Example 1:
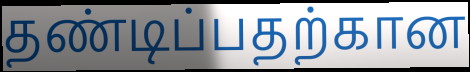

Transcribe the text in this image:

தண்டிப்பதற்கான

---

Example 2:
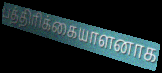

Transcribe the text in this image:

பத்திரிக்கையாளனாக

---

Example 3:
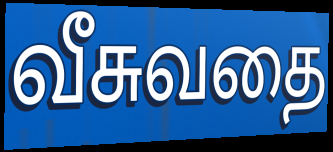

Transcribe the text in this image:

வீசுவதை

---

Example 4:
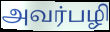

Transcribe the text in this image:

அவர்பழி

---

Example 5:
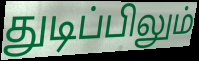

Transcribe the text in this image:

துடிப்பிலும்